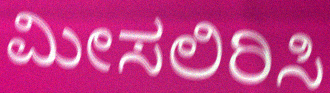
ಮೀಸಲಿರಿಸಿ